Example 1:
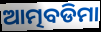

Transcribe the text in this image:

ଆତ୍ମବଡିମା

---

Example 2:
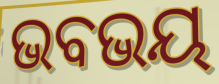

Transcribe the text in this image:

ଭବଭୟ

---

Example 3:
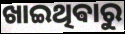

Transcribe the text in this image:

ଖାଇଥିଵାରୁ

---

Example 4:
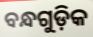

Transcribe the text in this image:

ବନ୍ଧଗୁଡ଼ିକ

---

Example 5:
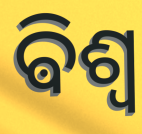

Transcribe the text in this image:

ଵିଶ୍ୱ